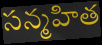
సన్మహిత